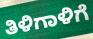
ತಿಳಿಗಾಳಿಗೆ